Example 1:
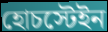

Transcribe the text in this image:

হোচস্টেইন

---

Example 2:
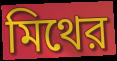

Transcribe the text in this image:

মিথের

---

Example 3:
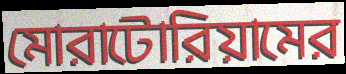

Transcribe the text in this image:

মোরাটোরিয়ামের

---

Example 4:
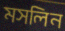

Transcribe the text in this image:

মসলিন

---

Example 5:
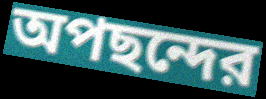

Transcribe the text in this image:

অপছন্দের